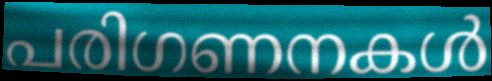
പരിഗണനകൾ